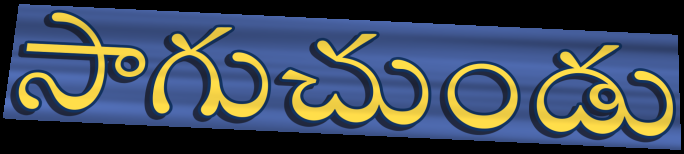
సాగుచుండు